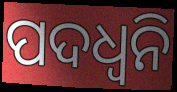
ପଦଧ୍ୱନି